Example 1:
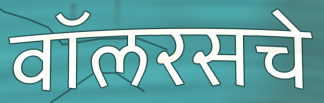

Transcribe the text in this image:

वॉलरसचे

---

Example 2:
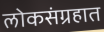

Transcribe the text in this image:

लोकसंग्रहात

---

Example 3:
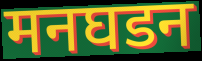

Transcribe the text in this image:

मनघडन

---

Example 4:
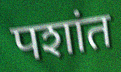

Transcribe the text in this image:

पशांत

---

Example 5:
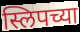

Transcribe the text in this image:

स्लिपच्या